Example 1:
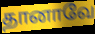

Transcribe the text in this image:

தானாவே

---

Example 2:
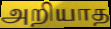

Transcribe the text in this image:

அறியாத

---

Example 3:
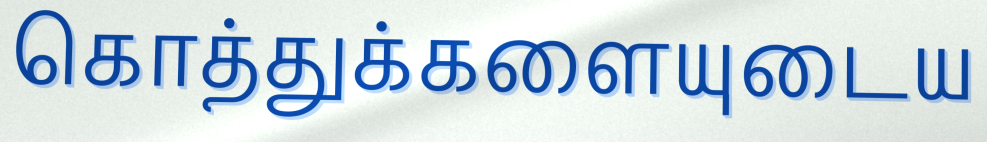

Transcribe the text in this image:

கொத்துக்களையுடைய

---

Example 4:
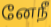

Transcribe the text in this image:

னேநீ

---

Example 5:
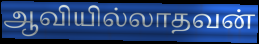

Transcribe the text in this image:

ஆவியில்லாதவன்